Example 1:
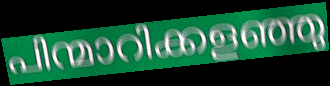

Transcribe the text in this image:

പിന്മാറിക്കളഞ്ഞു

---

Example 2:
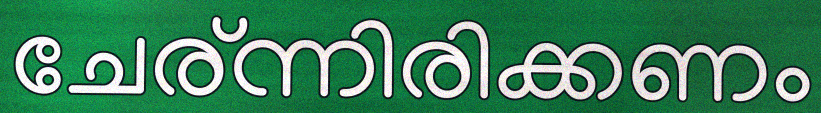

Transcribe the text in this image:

ചേര്ന്നിരിക്കണം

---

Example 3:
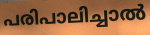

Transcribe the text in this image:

പരിപാലിച്ചാൽ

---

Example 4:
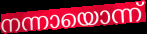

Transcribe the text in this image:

നന്നായൊന്ന്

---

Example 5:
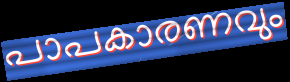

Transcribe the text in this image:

പാപകാരണവും